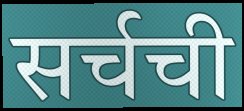
सर्चची